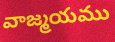
వాజ్మయము